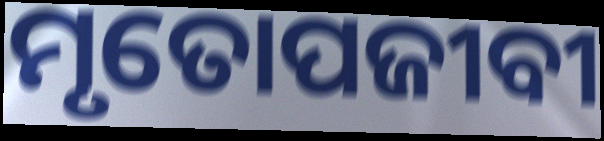
ମୃତୋପଜୀବୀ